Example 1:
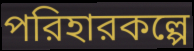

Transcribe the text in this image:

পরিহারকল্পে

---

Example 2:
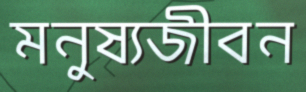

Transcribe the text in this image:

মনুষ্যজীবন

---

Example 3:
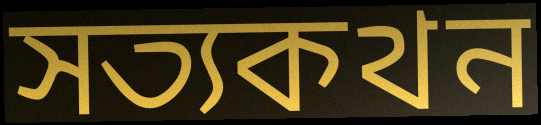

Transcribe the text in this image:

সত্যকথন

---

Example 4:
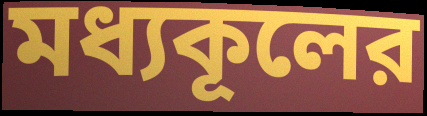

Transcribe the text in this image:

মধ্যকূলের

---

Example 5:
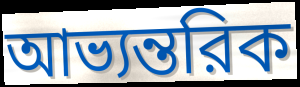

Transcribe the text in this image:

আভ্যন্তরিক